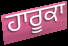
ਹਾਰੂਕਾ